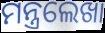
ମନ୍ତ୍ରଲେଖା